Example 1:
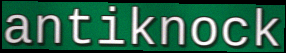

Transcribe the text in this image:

antiknock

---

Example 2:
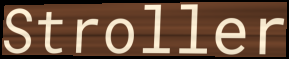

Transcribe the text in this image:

Stroller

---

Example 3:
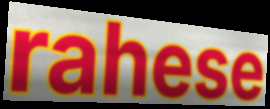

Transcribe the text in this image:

rahese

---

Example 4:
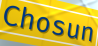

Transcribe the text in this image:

Chosun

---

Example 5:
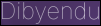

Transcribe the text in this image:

Dibyendu